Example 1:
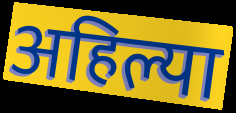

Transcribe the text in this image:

अहिल्या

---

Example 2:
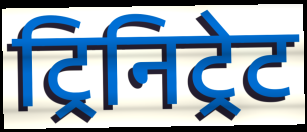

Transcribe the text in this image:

ट्रिनिट्रेट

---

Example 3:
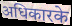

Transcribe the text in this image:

अधिकारके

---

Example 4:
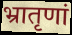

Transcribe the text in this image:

भ्रातृणां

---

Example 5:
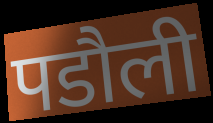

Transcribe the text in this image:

पडौली